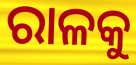
ରାଳକୁ